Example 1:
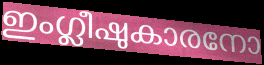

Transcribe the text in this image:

ഇംഗ്ലീഷുകാരനോ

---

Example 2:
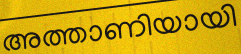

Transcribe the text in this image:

അത്താണിയായി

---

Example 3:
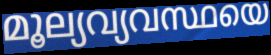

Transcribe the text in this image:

മൂല്യവ്യവസ്ഥയെ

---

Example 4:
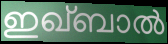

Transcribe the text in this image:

ഇഖ്ബാൽ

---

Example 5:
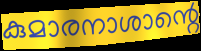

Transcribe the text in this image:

കുമാരനാശാന്റെ